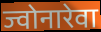
ज्वोनारेवा